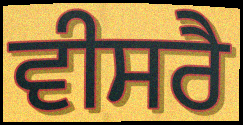
ਵੀਸਰੈ